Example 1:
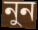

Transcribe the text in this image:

নুন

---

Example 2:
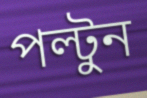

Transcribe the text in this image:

পল্টুন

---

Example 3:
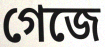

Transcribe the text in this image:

গেজে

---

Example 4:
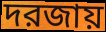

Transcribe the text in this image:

দরজায়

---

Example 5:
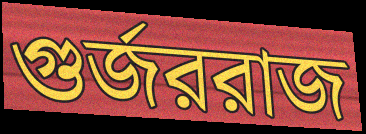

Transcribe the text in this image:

গুর্জররাজ